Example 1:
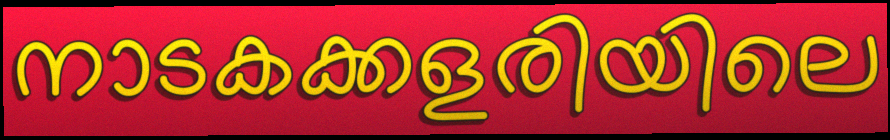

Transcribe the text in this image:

നാടകക്കളരിയിലെ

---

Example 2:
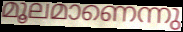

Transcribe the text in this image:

മൂലമാണെന്നു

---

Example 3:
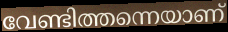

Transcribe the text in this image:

വേണ്ടിത്തന്നെയാണ്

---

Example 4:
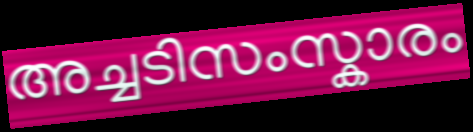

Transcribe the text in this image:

അച്ചടിസംസ്കാരം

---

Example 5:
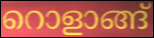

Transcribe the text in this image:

റൊളാങ്ങ്